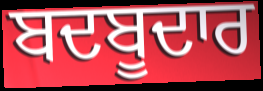
ਬਦਬੂਦਾਰ